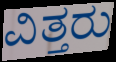
ವಿತ್ತರು